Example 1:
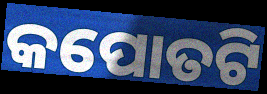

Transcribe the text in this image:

କପୋତଟି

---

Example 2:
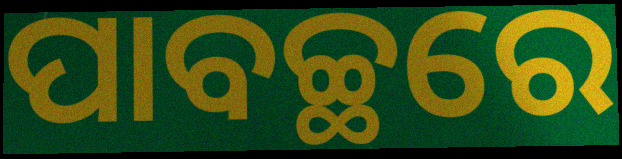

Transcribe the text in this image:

ପାବଚ୍ଛରେ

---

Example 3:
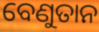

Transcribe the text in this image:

ବେଣୁତାନ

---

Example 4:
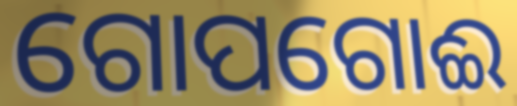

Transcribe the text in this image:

ଗୋପଗୋଈ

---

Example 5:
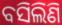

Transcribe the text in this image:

ବସିଲିଣି